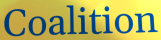
Coalition